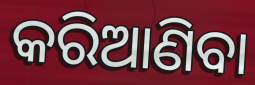
କରିଆଣିବା